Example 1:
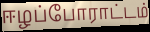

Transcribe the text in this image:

ஈழப்போராட்டம்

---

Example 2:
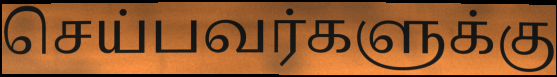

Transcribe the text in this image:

செய்பவர்களுக்கு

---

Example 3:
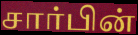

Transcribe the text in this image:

சார்பின்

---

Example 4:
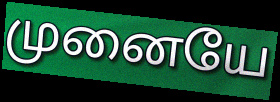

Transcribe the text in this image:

முனையே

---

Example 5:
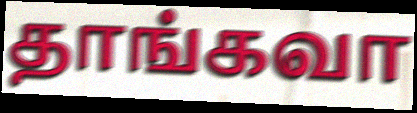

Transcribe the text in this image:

தாங்கவா